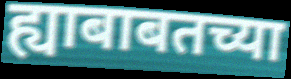
ह्याबाबतच्या